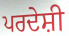
ਪਰਦੇਸ਼ੀ